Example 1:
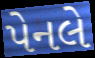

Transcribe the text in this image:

પેનલે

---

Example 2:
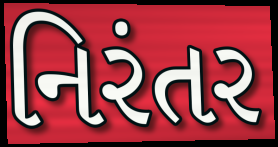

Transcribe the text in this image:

નિરંતર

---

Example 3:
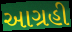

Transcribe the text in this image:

આગ્રહી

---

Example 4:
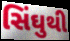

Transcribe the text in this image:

સિંઘુથી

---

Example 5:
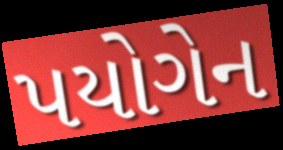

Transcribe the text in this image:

પયોગેન